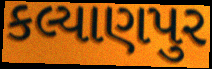
કલ્યાણપુર